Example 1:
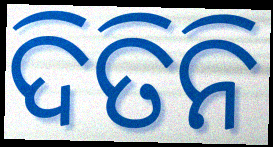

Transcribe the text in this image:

ଦିତିନି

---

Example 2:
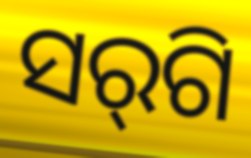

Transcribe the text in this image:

ସର୍‌ଗି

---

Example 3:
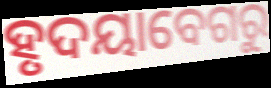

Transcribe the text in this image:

ହୃଦୟାବେଗରୁ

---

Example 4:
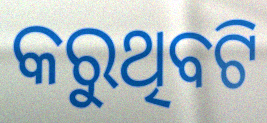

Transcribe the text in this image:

କରୁଥିବଟି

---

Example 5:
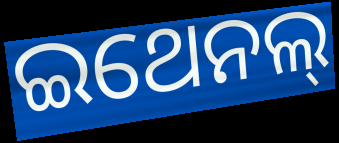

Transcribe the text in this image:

ଇଥେନଲ୍